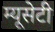
म्यूसेटी